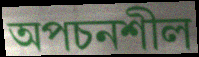
অপচনশীল